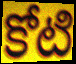
కోటి